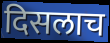
दिसलाच